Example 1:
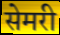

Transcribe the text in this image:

सेमरी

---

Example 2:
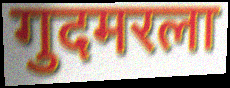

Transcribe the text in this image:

गुदमरला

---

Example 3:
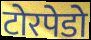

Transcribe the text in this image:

टोरपेडो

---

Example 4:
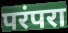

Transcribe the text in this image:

परंपरा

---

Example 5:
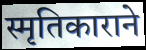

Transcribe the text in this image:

स्मृतिकाराने